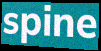
spine